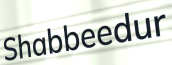
Shabbeedur